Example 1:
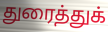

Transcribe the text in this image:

துரைத்துக்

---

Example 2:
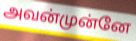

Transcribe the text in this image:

அவன்முன்னே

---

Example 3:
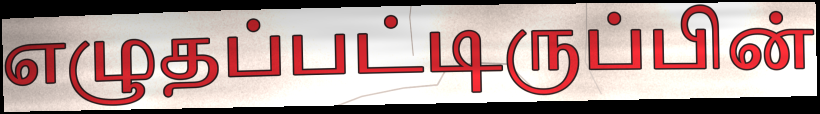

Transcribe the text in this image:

எழுதப்பட்டிருப்பின்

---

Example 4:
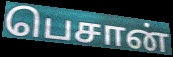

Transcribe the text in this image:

பெசான்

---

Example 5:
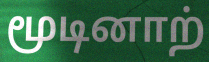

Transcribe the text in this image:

மூடினாற்